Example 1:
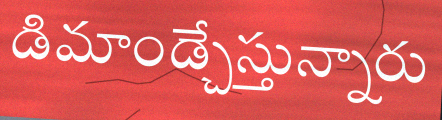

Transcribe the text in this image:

డిమాండ్చేస్తున్నారు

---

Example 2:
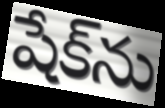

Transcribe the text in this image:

షేక్‌ను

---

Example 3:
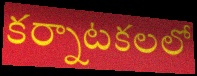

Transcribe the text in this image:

కర్నాటకలలో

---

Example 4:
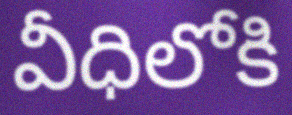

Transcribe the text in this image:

వీధిలోకి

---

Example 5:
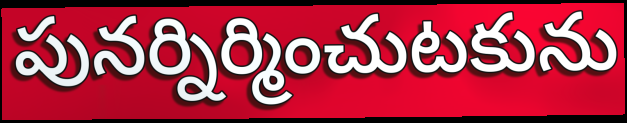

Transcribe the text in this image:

పునర్నిర్మించుటకును